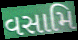
વસામિ